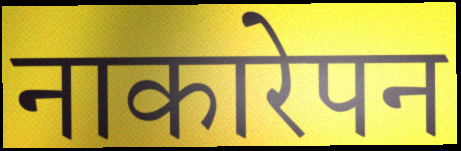
नाकारेपन